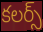
కలర్స్